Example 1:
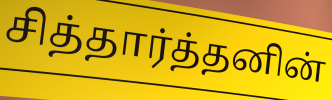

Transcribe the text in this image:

சித்தார்த்தனின்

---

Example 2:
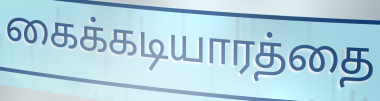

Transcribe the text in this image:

கைக்கடியாரத்தை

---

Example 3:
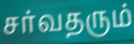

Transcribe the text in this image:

சர்வதரும்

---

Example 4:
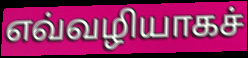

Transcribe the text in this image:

எவ்வழியாகச்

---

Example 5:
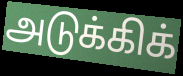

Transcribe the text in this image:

அடுக்கிக்